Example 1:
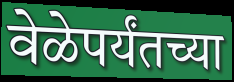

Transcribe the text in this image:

वेळेपर्यंतच्या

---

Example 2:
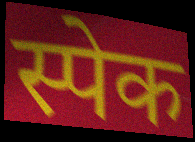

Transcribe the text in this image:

स्पेक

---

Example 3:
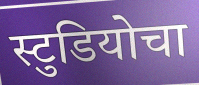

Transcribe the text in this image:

स्टुडियोचा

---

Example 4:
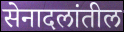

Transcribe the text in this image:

सेनादलांतील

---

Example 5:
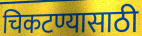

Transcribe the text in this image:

चिकटण्यासाठी